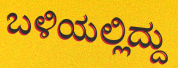
ಬಳಿಯಲ್ಲಿದ್ದು